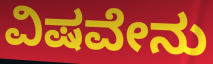
ವಿಷವೇನು